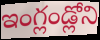
ఇంగ్లండ్లోని